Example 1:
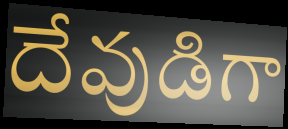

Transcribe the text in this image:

దేవుడిగా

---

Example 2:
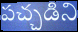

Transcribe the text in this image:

పచ్చడిని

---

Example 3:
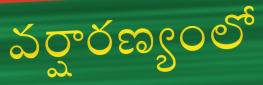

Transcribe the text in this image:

వర్షారణ్యంలో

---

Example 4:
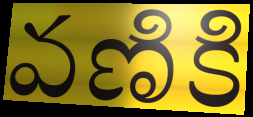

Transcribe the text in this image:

వణికి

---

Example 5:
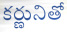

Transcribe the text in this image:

కర్ణునితో